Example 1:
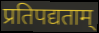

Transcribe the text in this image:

प्रतिपद्यताम्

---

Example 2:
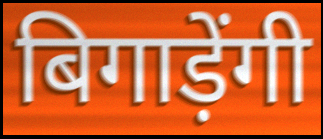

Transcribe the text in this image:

बिगाड़ेंगी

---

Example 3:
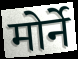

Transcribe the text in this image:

मोर्ने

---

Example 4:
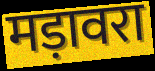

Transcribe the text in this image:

मड़ावरा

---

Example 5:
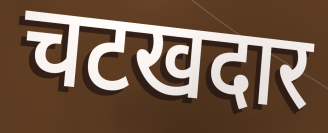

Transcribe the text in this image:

चटखदार